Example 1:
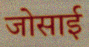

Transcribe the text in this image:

जोसाई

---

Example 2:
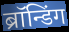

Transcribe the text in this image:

ब्रॉन्डिंग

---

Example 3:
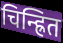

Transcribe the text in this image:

चिन्ह्रित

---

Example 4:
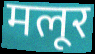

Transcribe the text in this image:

मलूर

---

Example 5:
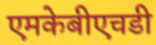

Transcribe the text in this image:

एमकेबीएचडी